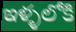
ఇళ్ళలోకి